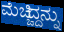
ಮೆಚ್ಚಿದ್ದನ್ನು